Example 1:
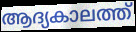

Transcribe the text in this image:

ആദ്യകാലത്ത്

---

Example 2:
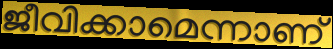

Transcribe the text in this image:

ജീവിക്കാമെന്നാണ്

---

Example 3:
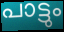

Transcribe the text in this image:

പാട്ടും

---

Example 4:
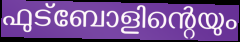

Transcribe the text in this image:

ഫുട്ബോളിന്റെയും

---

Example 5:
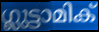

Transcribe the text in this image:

ഗ്ലുട്ടാമിക്